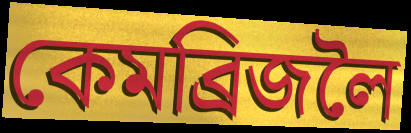
কেমব্ৰিজলৈ